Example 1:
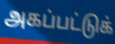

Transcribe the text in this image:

அகப்பட்டுக்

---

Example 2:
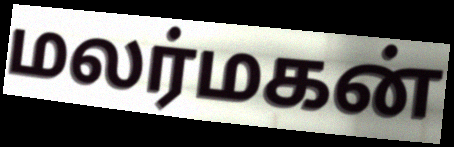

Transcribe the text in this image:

மலர்மகன்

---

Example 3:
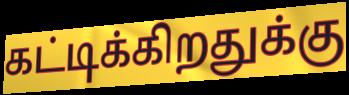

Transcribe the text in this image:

கட்டிக்கிறதுக்கு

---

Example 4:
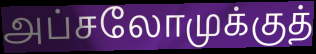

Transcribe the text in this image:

அப்சலோமுக்குத்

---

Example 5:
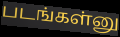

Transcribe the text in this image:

படங்கள்னு